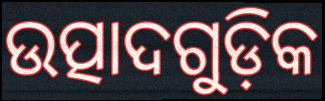
ଉତ୍ପାଦଗୁଡ଼ିକ